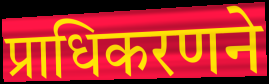
प्राधिकरणने